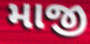
માજી